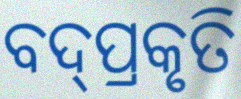
ବଦ୍‌ପ୍ରକୃତି